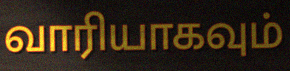
வாரியாகவும்